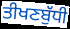
ਤੀਖਣਬੁੱਧੀ